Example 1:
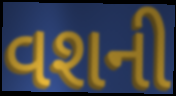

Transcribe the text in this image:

વશની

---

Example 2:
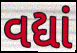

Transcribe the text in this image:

વદ્યાં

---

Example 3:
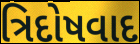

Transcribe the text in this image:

ત્રિદોષવાદ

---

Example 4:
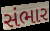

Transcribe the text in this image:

સંભાર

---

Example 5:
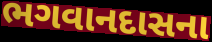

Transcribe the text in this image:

ભગવાનદાસના